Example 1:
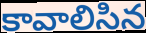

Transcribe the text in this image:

కావాలిసిన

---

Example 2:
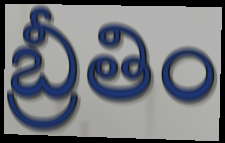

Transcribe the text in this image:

బ్రీతిం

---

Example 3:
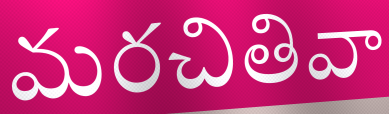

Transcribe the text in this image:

మరచితివా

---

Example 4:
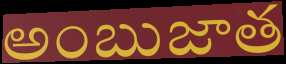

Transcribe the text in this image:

అంబుజాత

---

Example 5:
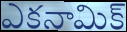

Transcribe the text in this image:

ఎకనామిక్